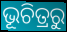
ଭୂଚିତ୍ରରୁ